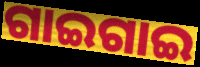
ଗାଇଗାଇ